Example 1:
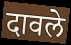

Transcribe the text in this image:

दावले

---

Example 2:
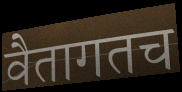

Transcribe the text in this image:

वैतागतच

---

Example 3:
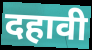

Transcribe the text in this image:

दहावी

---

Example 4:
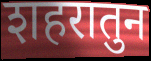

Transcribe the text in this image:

शहरातुन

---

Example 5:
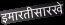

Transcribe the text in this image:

इमारतीसारखे